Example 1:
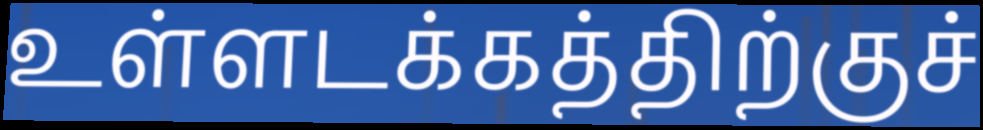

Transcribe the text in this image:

உள்ளடக்கத்திற்குச்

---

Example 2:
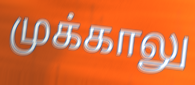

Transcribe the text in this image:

முக்காலு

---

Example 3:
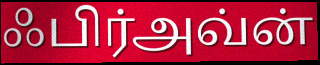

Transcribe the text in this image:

ஃபிர்அவ்ன்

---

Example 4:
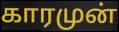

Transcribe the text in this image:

காரமுன்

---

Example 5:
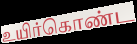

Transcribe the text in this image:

உயிர்கொண்ட